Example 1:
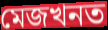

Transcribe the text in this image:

মেজখনত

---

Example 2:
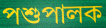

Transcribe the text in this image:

পশুপালক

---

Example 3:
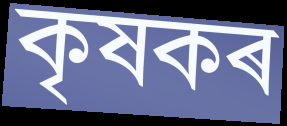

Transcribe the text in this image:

কৃষকৰ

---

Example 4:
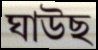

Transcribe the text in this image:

ঘাউছ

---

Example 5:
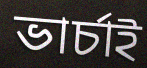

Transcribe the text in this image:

ভাৰ্চাই